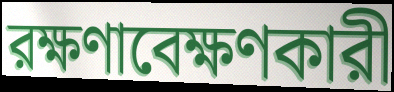
রক্ষণাবেক্ষণকারী